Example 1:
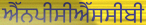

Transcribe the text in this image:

ਐੱਨਪੀਸੀਐੱਸਸੀਬੀ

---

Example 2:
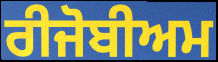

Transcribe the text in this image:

ਰੀਜੋਬੀਅਮ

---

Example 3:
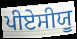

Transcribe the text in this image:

ਪੀਏਸੀਯੂ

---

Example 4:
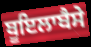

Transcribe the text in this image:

ਬੂਇਲਾਬੈਸੇ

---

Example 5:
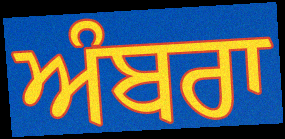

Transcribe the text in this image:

ਅੰਬਰਾ